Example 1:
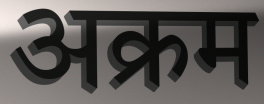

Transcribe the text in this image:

अक्रम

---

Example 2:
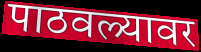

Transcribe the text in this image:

पाठवल्यावर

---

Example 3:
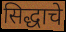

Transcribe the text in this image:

सिद्धाचे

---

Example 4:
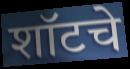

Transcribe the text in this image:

शॉटचे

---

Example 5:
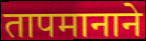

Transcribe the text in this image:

तापमानाने